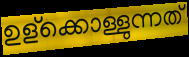
ഉള്ക്കൊള്ളുന്നത്